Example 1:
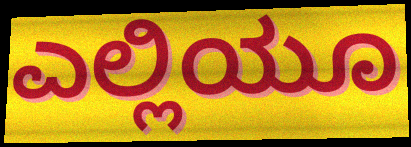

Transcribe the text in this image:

ಎಲ್ಲಿಯೂ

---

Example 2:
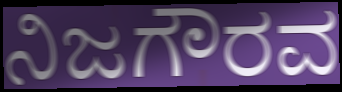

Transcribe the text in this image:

ನಿಜಗೌರವ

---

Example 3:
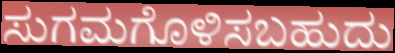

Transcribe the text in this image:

ಸುಗಮಗೊಳಿಸಬಹುದು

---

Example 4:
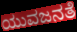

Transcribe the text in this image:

ಯುವಜನತೆ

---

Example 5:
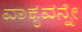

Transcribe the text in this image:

ವಾಕ್ಯವನ್ನೇ